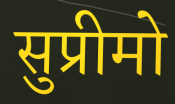
सुप्रीमो